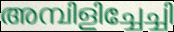
അമ്പിളിച്ചേച്ചി